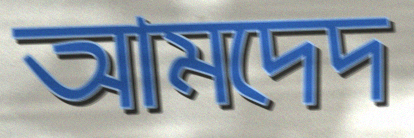
আমদেদ